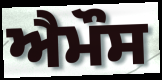
ਐਮੌਸ